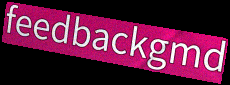
feedbackgmd